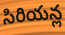
సిరియన్ల